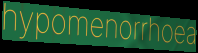
hypomenorrhoea